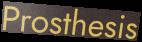
Prosthesis